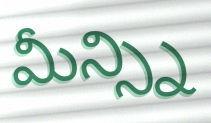
మీన్స్ని